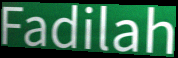
Fadilah